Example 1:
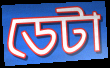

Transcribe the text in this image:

ডেটা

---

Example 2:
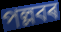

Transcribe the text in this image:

পল্লবৰ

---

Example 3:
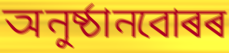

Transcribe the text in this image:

অনুষ্ঠানবোৰৰ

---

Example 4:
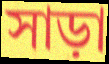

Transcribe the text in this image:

সাড়া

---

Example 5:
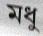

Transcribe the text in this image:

মধু